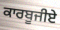
ਕਾਰਬੂਜੀਏ